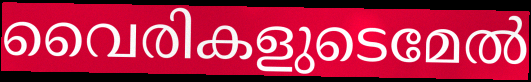
വൈരികളുടെമേൽ